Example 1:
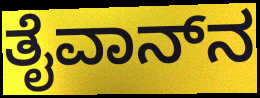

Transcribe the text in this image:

ತೈವಾನ್‌ನ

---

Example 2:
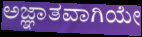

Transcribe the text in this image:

ಅಜ್ಞಾತವಾಗಿಯೇ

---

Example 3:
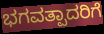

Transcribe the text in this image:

ಭಗವತ್ಪಾದರಿಗೆ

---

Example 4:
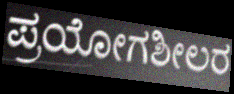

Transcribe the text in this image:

ಪ್ರಯೋಗಶೀಲರ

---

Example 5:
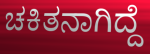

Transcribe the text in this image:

ಚಕಿತನಾಗಿದ್ದೆ